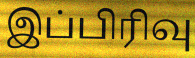
இப்பிரிவு